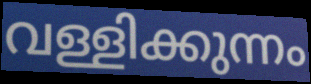
വള്ളിക്കുന്നം